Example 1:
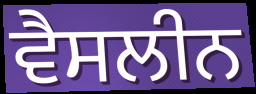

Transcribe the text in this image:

ਵੈਸਲੀਨ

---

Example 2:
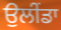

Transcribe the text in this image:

ਉਲੀਂਡਾ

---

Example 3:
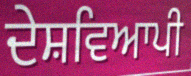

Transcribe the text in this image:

ਦੇਸ਼ਵਿਆਪੀ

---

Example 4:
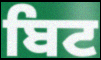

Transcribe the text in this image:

ਬਿਟ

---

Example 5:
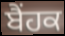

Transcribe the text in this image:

ਬੈਂਹਕ